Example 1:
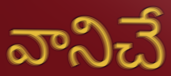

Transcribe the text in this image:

వానిచే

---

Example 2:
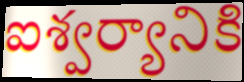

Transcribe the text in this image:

ఐశ్వర్యానికి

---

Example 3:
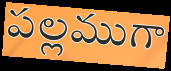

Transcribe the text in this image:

పల్లముగా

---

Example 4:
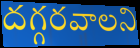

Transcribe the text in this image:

దగ్గరవాలని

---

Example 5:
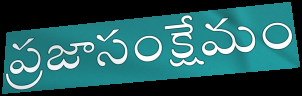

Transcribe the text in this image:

ప్రజాసంక్షేమం